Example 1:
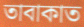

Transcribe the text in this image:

তাবাকাত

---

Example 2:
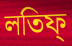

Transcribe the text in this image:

লতিফ্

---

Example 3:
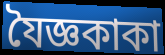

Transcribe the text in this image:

যৈজ্ঞকাকা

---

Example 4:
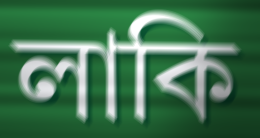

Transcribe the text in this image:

লাকি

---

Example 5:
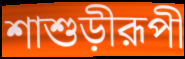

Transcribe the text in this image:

শাশুড়ীরূপী